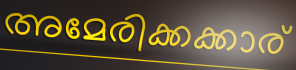
അമേരിക്കക്കാര്